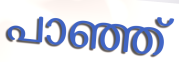
പാഞ്ഞ്